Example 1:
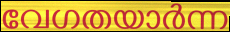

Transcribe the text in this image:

വേഗതയാർന്ന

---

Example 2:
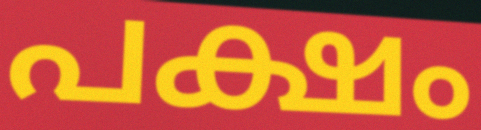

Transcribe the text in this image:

പക്ഷം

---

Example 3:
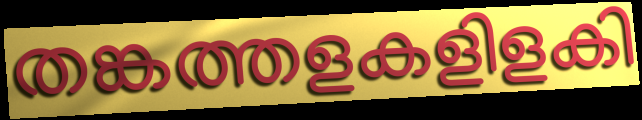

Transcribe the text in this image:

തങ്കത്തളകളിളകി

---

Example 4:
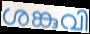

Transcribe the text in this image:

ശങ്കുവി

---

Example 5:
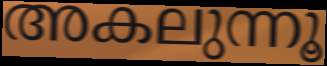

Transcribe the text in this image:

അകലുന്നൂ